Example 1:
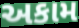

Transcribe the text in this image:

અકામ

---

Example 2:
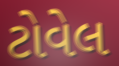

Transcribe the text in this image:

ટોવેલ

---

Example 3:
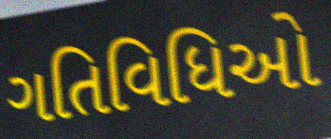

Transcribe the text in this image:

ગતિવિધિઓ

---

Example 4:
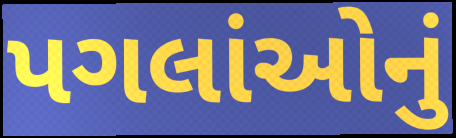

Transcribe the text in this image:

પગલાંઓનું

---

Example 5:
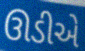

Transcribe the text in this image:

ઊડીએ